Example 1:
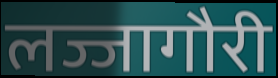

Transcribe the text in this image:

लज्जागौरी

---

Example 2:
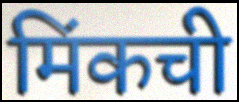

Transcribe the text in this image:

मिंकची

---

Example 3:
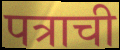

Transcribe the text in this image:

पत्राची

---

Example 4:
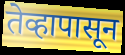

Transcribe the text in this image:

तेव्हापासून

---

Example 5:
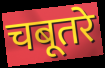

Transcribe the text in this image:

चबूतरे